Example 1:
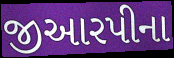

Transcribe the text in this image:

જીઆરપીના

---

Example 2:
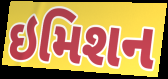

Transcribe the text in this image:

ઇમિશન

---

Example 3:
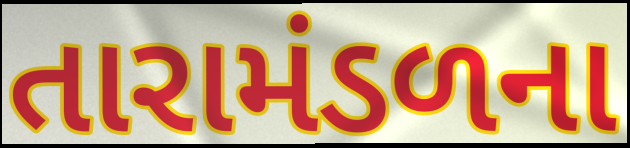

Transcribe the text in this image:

તારામંડળના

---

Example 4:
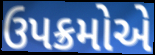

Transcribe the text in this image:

ઉપક્રમોએ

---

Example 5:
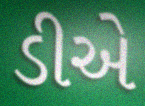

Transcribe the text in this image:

ડીએ